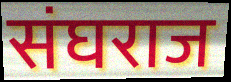
संघराज